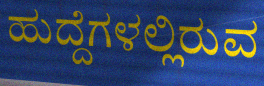
ಹುದ್ದೆಗಳಲ್ಲಿರುವ